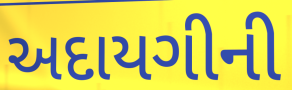
અદાયગીની